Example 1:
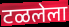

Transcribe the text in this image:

टळलेला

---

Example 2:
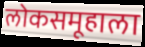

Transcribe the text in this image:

लोकसमूहाला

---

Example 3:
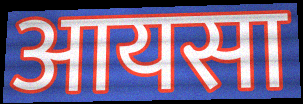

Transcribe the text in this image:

आयसा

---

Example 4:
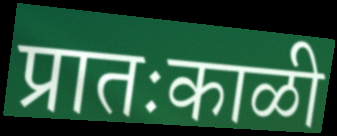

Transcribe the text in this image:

प्रातःकाळी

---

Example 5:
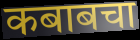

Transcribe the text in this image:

कबाबचा